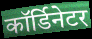
कॉर्डिनेटर